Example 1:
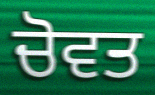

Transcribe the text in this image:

ਚੋਵਤ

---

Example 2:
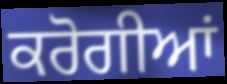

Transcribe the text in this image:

ਕਰੋਗੀਆਂ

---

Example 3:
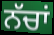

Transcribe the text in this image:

ਨੱਚਾਂ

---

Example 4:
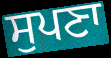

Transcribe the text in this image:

ਸੁਪਣਾ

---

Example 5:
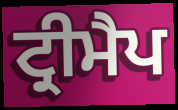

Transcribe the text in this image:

ਟ੍ਰੀਮੈਪ